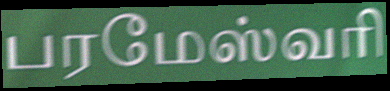
பரமேஸ்வரி